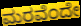
ಮರವೆಂದೇ